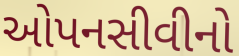
ઓપનસીવીનો